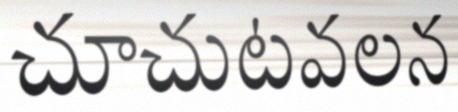
చూచుటవలన